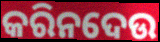
କରିନଦେଉ